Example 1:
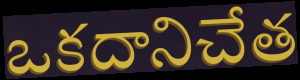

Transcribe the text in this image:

ఒకదానిచేత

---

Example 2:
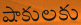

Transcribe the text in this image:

షాకులకు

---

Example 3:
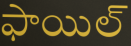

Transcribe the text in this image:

ఫాయిల్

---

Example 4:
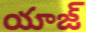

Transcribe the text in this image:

యాజ్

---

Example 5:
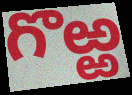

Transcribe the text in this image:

గొఱ్ఱ